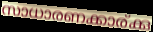
സാധാരണക്കാര്ക്കു